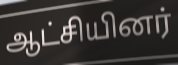
ஆட்சியினர்